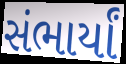
સંભાર્યાં